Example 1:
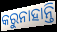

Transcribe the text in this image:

କରୁନାହାନ୍ତି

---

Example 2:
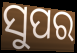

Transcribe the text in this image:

ସୁପର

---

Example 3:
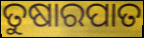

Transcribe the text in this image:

ତୁଷାରପାତ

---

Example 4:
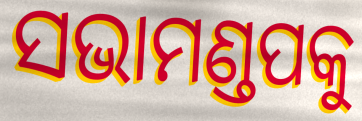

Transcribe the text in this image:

ସଭାମଣ୍ଡପକୁ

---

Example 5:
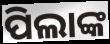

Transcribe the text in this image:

ପିଲାଙ୍କ